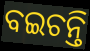
ବଇଚନ୍ତି